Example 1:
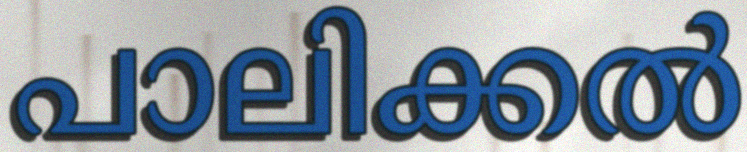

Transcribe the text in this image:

പാലിക്കൽ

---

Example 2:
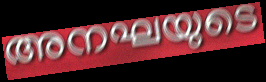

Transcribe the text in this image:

അനഘയുടെ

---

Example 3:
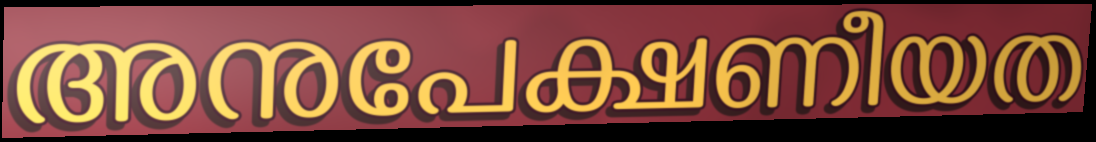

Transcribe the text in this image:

അനുപേക്ഷണീയത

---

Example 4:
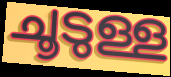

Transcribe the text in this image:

ചൂടുള്ള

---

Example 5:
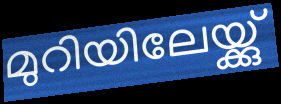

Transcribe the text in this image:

മുറിയിലേയ്ക്കു്